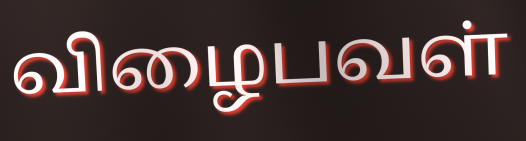
விழைபவள்